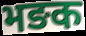
भङक